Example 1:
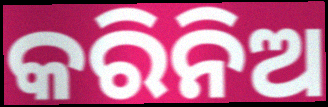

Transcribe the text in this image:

କରିନିଅ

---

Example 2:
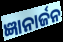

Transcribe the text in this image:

ଜ୍ଞାନାର୍ଜନ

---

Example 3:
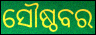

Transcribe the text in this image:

ସୌଷ୍ଠବର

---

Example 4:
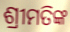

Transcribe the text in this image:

ଶ୍ରୀମତିଙ୍କ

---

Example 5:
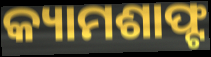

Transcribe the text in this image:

କ୍ୟାମଶାଫ୍ଟ